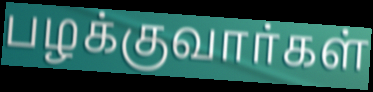
பழக்குவார்கள்